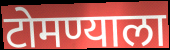
टोमण्याला